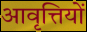
आवृत्तियों